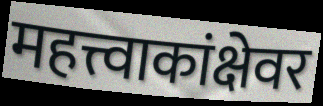
महत्त्वाकांक्षेवर